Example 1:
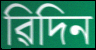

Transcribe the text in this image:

ৱিদিন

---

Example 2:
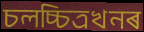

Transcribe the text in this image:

চলচ্চিত্ৰখনৰ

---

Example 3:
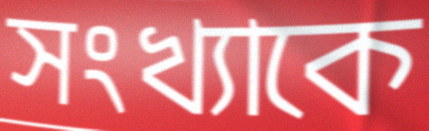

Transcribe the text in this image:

সংখ্যাকে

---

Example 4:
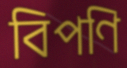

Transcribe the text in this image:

বিপণি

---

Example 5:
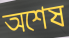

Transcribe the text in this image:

অশেষ